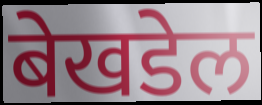
बेखडेल